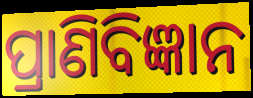
ପ୍ରାଣିବିଜ୍ଞାନ